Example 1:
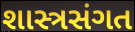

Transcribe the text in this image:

શાસ્ત્રસંગત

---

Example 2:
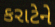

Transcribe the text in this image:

કરાટેને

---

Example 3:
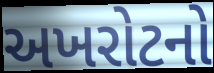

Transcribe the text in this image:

અખરોટનો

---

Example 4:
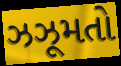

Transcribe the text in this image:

ઝઝૂમતો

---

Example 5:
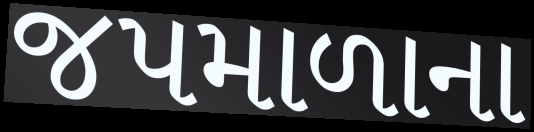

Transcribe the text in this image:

જપમાળાના